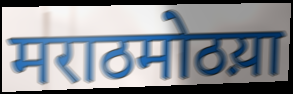
मराठमोठय़ा